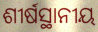
ଶୀର୍ଷସ୍ଥାନୀୟ